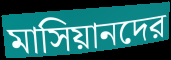
মাসিয়ানদের